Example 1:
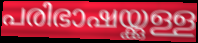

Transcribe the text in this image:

പരിഭാഷയ്ക്കുള്ള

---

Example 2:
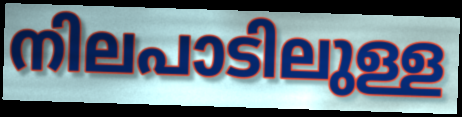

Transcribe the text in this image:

നിലപാടിലുള്ള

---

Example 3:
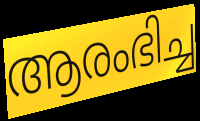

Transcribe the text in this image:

ആരംഭിച്ച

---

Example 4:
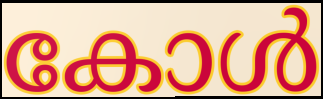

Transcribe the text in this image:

കോൾ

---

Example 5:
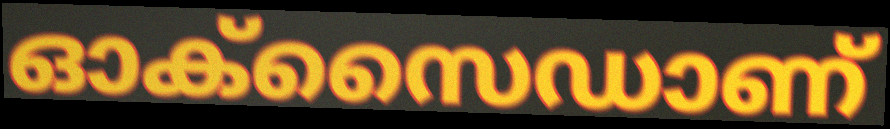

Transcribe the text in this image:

ഓക്സൈഡാണ്